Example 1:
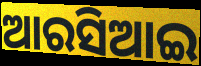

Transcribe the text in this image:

ଆରସିଆଇ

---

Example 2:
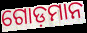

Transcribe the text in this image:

ଗୋଡ଼ମାନ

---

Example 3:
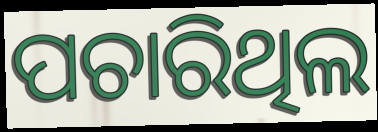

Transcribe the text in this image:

ପଚାରିଥିଲ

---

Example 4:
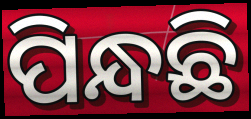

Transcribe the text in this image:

ପିନ୍ଧଛି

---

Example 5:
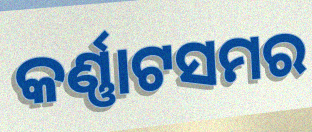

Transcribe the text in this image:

କର୍ଣ୍ଣାଟସମର